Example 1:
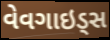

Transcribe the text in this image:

વેવગાઇડ્સ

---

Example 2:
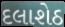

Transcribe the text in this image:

દલાશેઠ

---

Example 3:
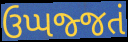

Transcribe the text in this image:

ઉપ્પજ્જતં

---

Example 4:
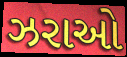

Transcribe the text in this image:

ઝરાઓ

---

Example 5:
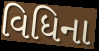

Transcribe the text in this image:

વિધિના